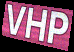
VHP